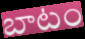
బాటం